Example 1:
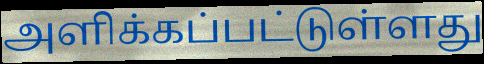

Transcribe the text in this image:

அளிக்கப்பட்டுள்ளது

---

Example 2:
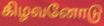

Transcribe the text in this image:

கிழவனோடு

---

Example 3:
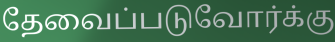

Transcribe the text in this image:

தேவைப்படுவோர்க்கு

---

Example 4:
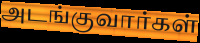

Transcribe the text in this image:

அடங்குவார்கள்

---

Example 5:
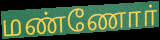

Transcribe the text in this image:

மண்ணோர்